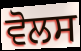
ਵੋਲਸ